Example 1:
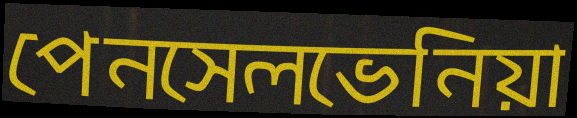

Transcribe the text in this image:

পেনসেলভেনিয়া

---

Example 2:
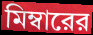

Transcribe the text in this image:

মিম্বারের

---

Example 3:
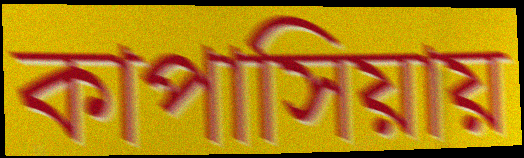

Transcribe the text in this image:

কাপাসিয়ায়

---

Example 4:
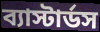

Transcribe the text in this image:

ব্যাস্টার্ডস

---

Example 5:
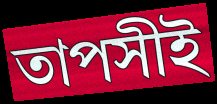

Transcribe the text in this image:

তাপসীই